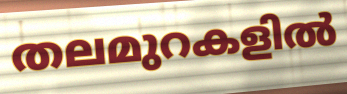
തലമുറകളിൽ